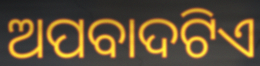
ଅପବାଦଟିଏ